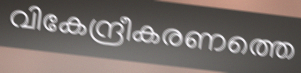
വികേന്ദ്രീകരണത്തെ